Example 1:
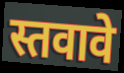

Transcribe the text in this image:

स्तवावे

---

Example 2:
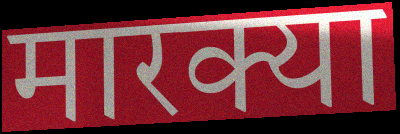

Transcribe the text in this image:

मारक्या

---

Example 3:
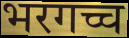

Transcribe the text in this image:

भरगच्च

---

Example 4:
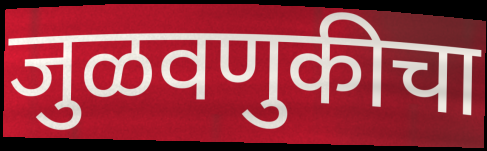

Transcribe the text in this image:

जुळवणुकीचा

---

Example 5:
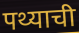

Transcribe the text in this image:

पथ्याची